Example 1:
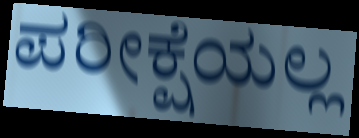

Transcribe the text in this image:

ಪರೀಕ್ಷೆಯಲ್ಲ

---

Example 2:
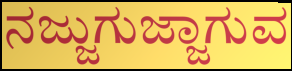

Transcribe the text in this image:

ನಜ್ಜುಗುಜ್ಜಾಗುವ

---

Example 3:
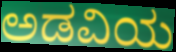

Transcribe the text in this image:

ಅಡವಿಯ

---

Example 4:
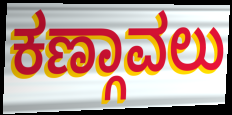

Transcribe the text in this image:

ಕಣ್ಗಾವಲು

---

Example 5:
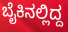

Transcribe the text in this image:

ಬೈಕಿನಲ್ಲಿದ್ದ